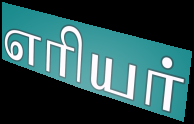
எரியர்